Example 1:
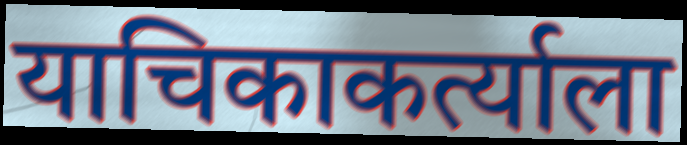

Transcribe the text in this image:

याचिकाकर्त्याला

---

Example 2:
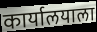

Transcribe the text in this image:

कार्यालयाला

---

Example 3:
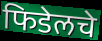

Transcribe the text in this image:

फिडेलचे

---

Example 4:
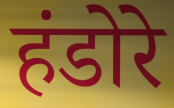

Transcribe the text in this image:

हंडोरे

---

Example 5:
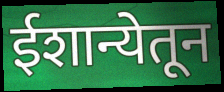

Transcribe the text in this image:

ईशान्येतून